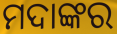
ମଦାଙ୍କର